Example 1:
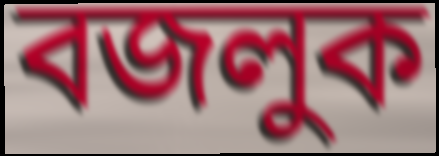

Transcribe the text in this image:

বজলুক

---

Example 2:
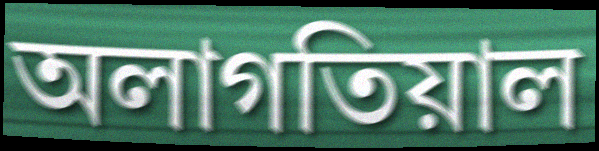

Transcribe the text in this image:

অলাগতিয়াল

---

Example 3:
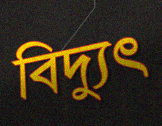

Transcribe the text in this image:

বিদ্যুৎ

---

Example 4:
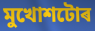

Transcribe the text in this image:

মুখোশটোৰ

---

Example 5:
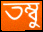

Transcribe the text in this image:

তম্বু